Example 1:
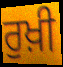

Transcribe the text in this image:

ਰੁਖ਼ੀ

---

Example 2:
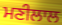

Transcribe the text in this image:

ਮਣੀਲਾਲ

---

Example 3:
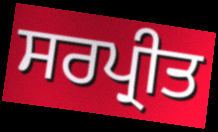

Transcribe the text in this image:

ਸਰਪ੍ਰੀਤ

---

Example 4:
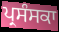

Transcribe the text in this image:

ਪ੍ਰਸੰਸਕਾ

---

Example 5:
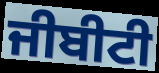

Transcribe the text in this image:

ਜੀਬੀਟੀ